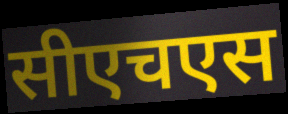
सीएचएस